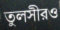
তুলসীরও